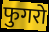
फुगरो